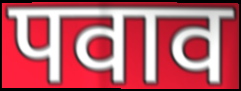
पवाव